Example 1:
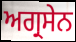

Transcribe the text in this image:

ਅਗ੍ਰਸੇਨ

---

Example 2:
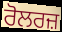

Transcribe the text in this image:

ਰੋਲਰਜ਼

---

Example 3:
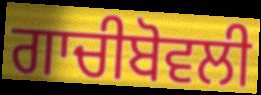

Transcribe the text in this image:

ਗਾਚੀਬੋਵਲੀ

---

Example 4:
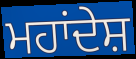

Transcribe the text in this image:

ਮਹਾਂਦੇਸ਼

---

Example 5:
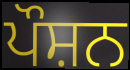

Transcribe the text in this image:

ਪੌਸ਼ਨ